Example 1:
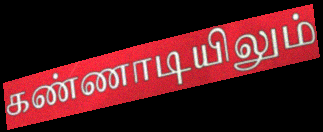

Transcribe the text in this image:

கண்ணாடியிலும்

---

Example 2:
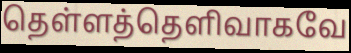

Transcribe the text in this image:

தெள்ளத்தெளிவாகவே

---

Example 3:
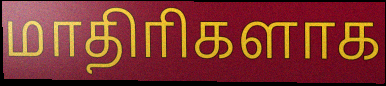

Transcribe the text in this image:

மாதிரிகளாக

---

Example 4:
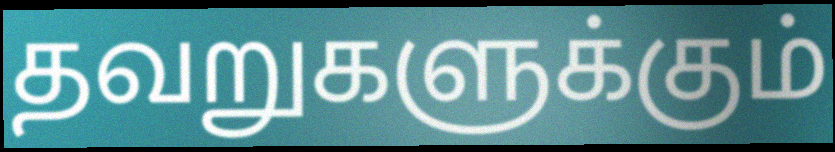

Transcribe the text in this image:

தவறுகளுக்கும்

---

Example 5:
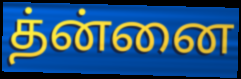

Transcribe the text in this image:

த்ன்னை